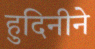
हुदिनीने